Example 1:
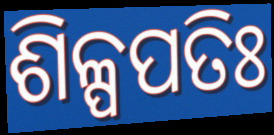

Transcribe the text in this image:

ଶିଳ୍ପପତିଃ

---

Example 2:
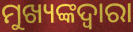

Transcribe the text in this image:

ମୁଖ୍ୟଙ୍କଦ୍ଵାରା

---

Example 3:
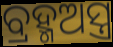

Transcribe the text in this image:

ବ୍ରହ୍ମଅସ୍ତ୍ର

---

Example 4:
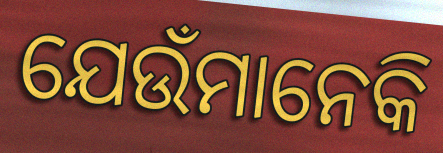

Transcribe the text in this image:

ଯେଉଁମାନେକି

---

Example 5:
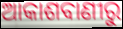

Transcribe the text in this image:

ଆକାଶବାଣୀରୁ